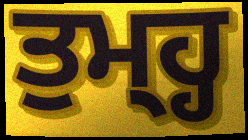
ਤੁਮ੍ਹ੍ਹ